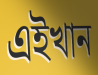
এইখান